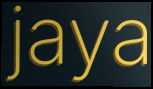
jaya